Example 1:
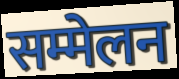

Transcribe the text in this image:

सम्‍मेलन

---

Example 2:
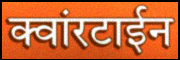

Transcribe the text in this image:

क्वांरटाईन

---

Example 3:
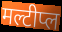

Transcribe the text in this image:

मल्टीप्ल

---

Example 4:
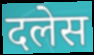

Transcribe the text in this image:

दलेस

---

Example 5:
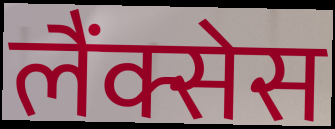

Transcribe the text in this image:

लैंक्सेस